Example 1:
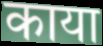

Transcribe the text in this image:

काया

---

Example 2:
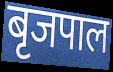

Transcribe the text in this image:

बृजपाल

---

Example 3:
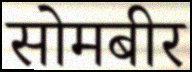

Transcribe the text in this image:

सोमबीर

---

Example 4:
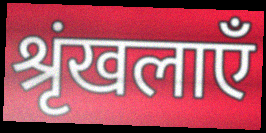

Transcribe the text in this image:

श्रृंखलाएँ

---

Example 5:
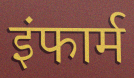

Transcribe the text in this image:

इंफार्म